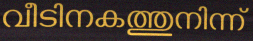
വീടിനകത്തുനിന്ന്